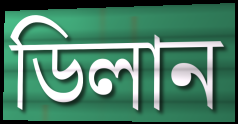
ডিলান